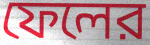
ফেলের